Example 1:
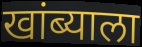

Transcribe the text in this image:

खांब्याला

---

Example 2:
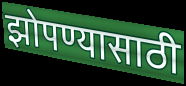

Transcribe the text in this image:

झोपण्यासाठी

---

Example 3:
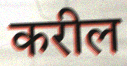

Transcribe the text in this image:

करील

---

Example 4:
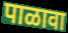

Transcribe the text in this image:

पाळावा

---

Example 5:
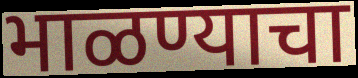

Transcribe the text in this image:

भाळण्याचा